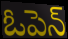
ఓపెన్